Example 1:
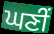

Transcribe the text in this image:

ਘਣੀਂ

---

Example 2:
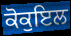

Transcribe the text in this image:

ਕੋਕੁਇਲ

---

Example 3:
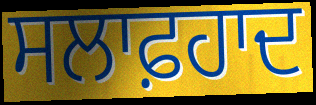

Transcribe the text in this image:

ਸਲਾਫ਼ਹਾਦ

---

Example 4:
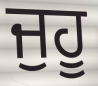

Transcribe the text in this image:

ਜੁਹੂ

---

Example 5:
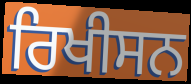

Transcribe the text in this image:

ਰਿਖੀਸਨ